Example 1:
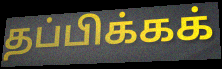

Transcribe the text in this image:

தப்பிக்கக்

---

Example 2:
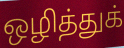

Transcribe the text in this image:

ஒழித்துக்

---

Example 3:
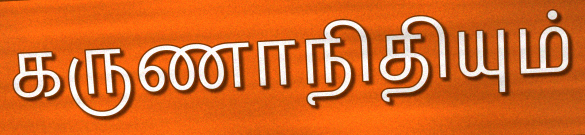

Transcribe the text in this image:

கருணாநிதியும்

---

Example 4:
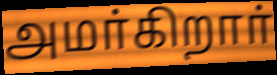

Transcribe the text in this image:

அமர்கிறார்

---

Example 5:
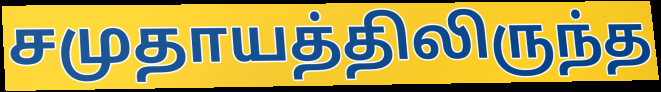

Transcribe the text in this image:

சமுதாயத்திலிருந்த